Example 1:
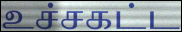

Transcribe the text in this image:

உச்சகட்ட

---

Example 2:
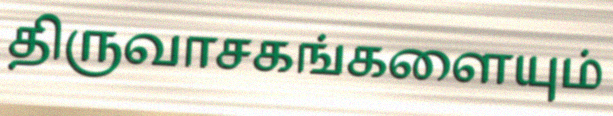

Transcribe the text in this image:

திருவாசகங்களையும்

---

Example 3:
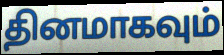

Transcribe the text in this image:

தினமாகவும்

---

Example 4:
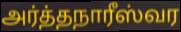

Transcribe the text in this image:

அர்த்தநாரீஸ்வர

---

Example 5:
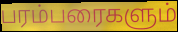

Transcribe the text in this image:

பரம்பரைகளும்